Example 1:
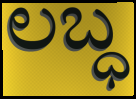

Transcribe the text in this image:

ಲಬ್ಧ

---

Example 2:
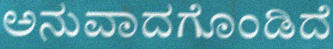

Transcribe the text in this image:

ಅನುವಾದಗೊಂಡಿದೆ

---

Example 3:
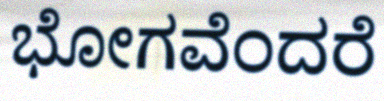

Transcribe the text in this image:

ಭೋಗವೆಂದರೆ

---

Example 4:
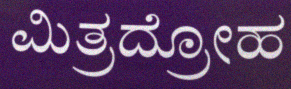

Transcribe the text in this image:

ಮಿತ್ರದ್ರೋಹ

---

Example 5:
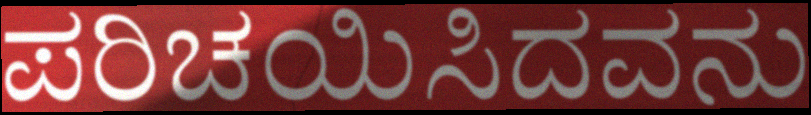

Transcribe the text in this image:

ಪರಿಚಯಿಸಿದವನು